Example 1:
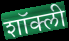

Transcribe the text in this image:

शॉक्ली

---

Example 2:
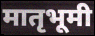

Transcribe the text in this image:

मातृभूमी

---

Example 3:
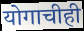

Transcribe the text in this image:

योगाचीही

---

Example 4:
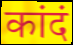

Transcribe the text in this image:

कांदं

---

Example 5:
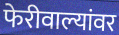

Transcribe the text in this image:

फेरीवाल्यांवर